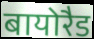
बायोरैड